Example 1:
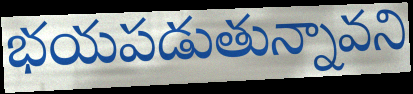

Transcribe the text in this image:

భయపడుతున్నావని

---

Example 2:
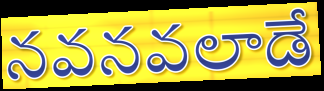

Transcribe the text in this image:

నవనవలాడే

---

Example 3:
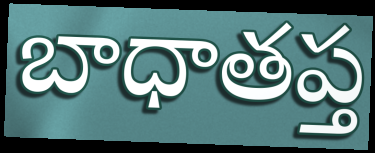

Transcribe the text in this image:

బాధాతప్త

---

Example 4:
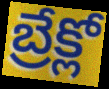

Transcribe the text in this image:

బ్రేక్లో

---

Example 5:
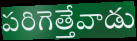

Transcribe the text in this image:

పరిగెత్తేవాడు